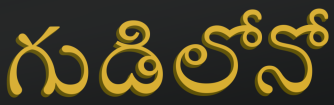
గుడిలోనో